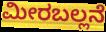
ಮೀರಬಲ್ಲನೆ